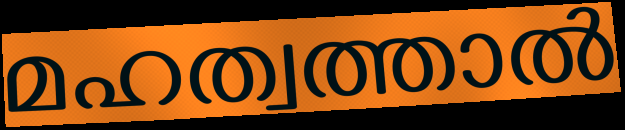
മഹത്വത്താൽ